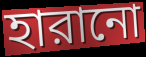
হারানো